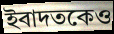
ইবাদতকেও